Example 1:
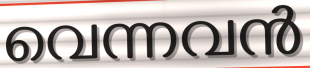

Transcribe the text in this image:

വെന്നവൻ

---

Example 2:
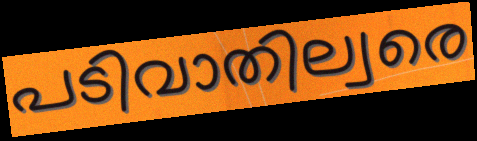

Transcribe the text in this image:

പടിവാതില്വരെ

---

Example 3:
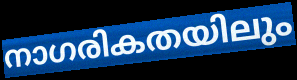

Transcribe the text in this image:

നാഗരികതയിലും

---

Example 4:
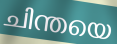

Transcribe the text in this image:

ചിന്തയെ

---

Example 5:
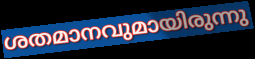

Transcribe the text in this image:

ശതമാനവുമായിരുന്നു